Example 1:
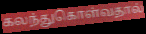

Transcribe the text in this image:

கலந்துகொள்வதால்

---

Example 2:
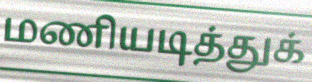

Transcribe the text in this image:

மணியடித்துக்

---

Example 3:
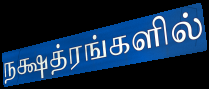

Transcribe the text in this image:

நக்ஷத்ரங்களில்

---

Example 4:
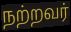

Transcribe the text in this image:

நற்றவர்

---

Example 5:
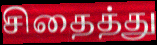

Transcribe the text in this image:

சிதைத்து